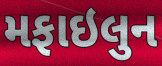
મફાઇલુન